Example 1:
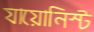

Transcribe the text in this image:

যায়োনিস্ট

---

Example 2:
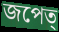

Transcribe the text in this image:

জপেত্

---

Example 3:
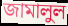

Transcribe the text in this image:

জামালুল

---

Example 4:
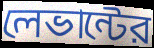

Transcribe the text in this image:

লেভান্টের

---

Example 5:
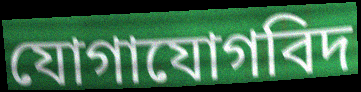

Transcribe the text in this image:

যোগাযোগবিদ